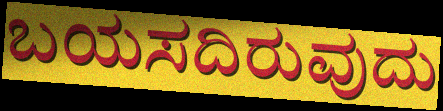
ಬಯಸದಿರುವುದು